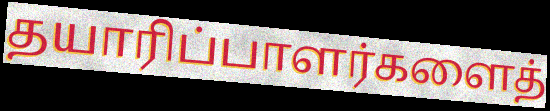
தயாரிப்பாளர்களைத்